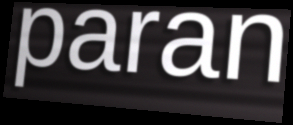
paran